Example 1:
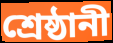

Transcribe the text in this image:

শ্রেষ্ঠানী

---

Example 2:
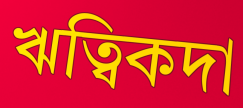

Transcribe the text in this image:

ঋত্বিকদা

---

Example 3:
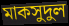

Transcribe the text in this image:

মাকসুদুল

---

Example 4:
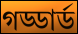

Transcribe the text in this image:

গড্ডার্ড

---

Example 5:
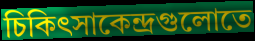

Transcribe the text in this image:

চিকিৎসাকেন্দ্রগুলোতে